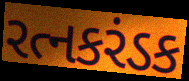
રત્નકરંડક